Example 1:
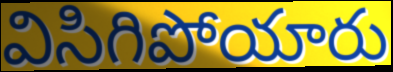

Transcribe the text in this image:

విసిగిపోయారు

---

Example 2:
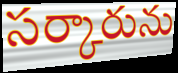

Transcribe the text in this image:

సర్కారును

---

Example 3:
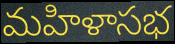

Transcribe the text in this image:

మహిళాసభ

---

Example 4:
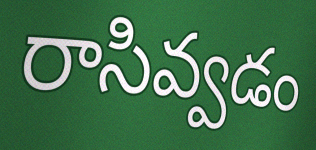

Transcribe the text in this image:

రాసివ్వడం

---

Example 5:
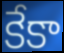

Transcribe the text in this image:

కేకా